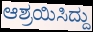
ಆಶ್ರಯಿಸಿದ್ದು